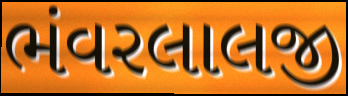
ભંવરલાલજી